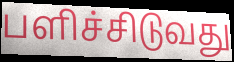
பளிச்சிடுவது